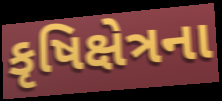
કૃષિક્ષેત્રના